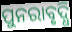
ପୁନରାବୃଦ୍ଧି